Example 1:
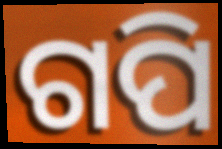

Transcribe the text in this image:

ଗପି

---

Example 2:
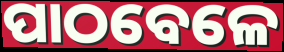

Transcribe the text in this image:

ପାଠବେଳେ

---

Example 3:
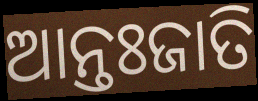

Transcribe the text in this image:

ଆନ୍ତଃଜାତି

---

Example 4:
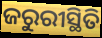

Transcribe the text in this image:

ଜରୁରୀସ୍ଥିତି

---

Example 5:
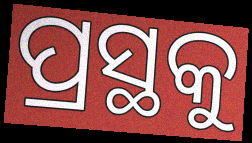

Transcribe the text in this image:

ପ୍ରସ୍ଥକୁ